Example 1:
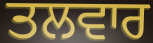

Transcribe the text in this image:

ਤਲਵਾਰ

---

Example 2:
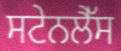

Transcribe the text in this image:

ਸਟੇਨਲੈੱਸ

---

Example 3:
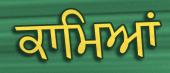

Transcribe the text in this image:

ਕਾਮਿਆਂ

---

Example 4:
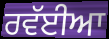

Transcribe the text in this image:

ਰਵੱਈਆ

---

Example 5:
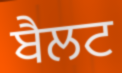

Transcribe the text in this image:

ਬੈਲਟ